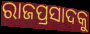
ରାଜପ୍ରସାଦକୁ